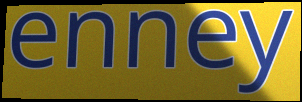
enney